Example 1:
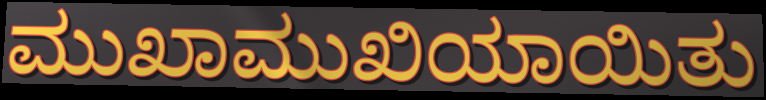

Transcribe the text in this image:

ಮುಖಾಮುಖಿಯಾಯಿತು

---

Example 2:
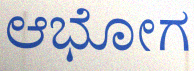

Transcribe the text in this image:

ಆಭೋಗ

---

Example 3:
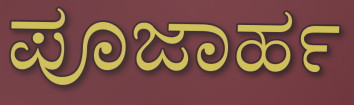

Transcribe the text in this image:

ಪೂಜಾರ್ಹ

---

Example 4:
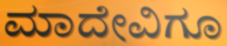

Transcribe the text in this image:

ಮಾದೇವಿಗೂ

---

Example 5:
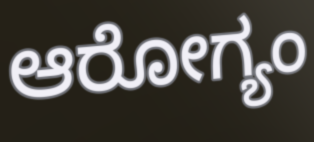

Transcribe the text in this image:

ಆರೋಗ್ಯಂ